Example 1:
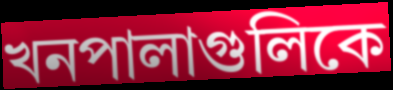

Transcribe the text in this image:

খনপালাগুলিকে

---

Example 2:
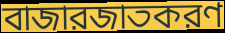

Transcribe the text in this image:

বাজারজাতকরণ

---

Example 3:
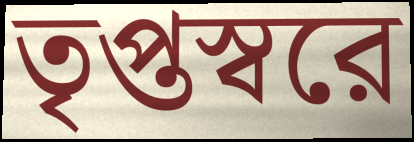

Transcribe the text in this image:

তৃপ্তস্বরে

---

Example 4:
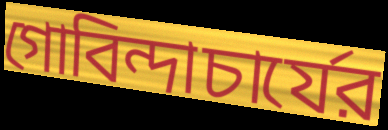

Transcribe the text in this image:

গোবিন্দাচার্যের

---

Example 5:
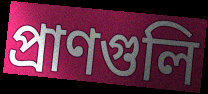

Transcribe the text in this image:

প্রাণগুলি